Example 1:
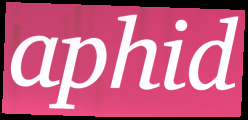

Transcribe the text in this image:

aphid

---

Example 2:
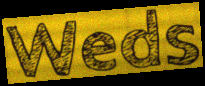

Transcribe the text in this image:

Weds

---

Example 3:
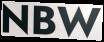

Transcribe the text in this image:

NBW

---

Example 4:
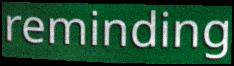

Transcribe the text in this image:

reminding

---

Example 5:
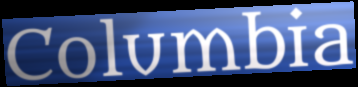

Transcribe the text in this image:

Columbia